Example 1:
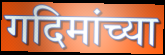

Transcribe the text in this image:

गदिमांच्या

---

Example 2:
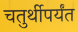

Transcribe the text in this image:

चतुर्थीपर्यंत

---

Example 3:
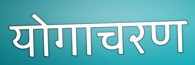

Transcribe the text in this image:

योगाचरण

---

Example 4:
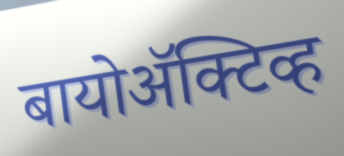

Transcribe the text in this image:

बायोॲक्टिव्ह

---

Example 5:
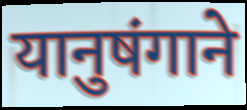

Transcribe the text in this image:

यानुषंगाने